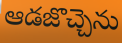
ఆడజొచ్చెను